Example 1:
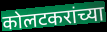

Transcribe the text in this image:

कोलटकरांच्या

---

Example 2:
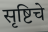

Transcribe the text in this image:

सृष्टिचे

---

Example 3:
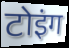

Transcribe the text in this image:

टोइंग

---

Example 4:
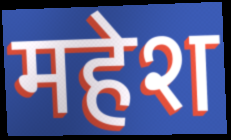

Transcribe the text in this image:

महेश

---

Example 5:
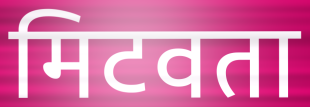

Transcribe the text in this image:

मिटवता